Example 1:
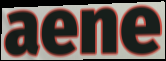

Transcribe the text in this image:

aene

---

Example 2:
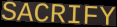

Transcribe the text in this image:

SACRIFY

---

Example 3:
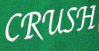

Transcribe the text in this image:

CRUSH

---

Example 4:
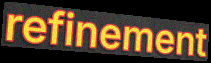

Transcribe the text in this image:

refinement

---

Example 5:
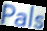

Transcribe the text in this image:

Pals